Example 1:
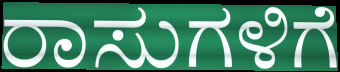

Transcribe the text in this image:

ರಾಸುಗಳಿಗೆ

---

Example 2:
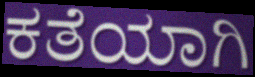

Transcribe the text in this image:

ಕತೆಯಾಗಿ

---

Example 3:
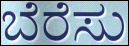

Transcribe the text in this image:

ಬೆರೆಸು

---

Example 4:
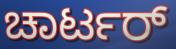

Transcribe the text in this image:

ಚಾರ್ಟರ್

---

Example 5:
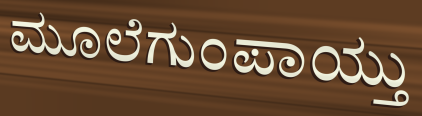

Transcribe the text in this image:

ಮೂಲೆಗುಂಪಾಯ್ತು